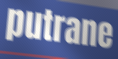
putrane